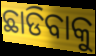
ଛାଡିବାକୁ